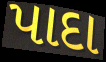
પાદા